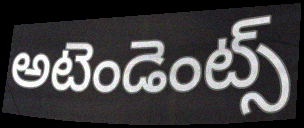
అటెండెంట్స్